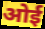
ओई